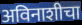
अविनाशीचा